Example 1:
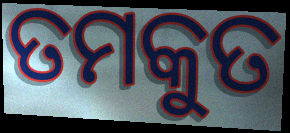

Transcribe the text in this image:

ତମକୁତ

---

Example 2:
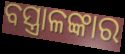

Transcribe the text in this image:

ବସ୍ତ୍ରାଳଙ୍କାର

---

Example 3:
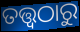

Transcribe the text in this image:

ତତ୍ତ୍ବଠାରୁ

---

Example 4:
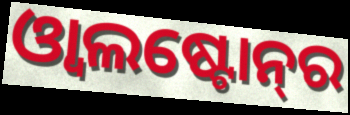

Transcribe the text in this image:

ଓ୍ୱାଲଷ୍ଟୋନ୍‌ର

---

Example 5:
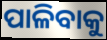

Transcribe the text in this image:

ପାଳିବାକୁ